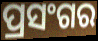
ପ୍ରସଂଗର